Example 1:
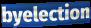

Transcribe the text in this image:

byelection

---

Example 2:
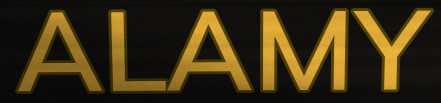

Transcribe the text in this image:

ALAMY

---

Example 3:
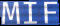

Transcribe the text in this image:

MIF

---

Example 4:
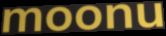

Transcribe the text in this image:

moonu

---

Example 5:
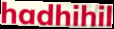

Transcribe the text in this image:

hadhihil